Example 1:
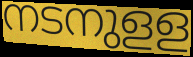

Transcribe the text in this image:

നടനുളള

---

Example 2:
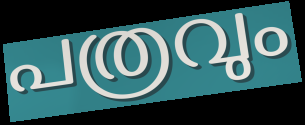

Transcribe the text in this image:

പത്രവും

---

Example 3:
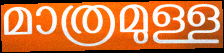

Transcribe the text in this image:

മാത്രമുള്ള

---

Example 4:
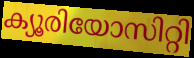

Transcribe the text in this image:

ക്യൂരിയോസിറ്റി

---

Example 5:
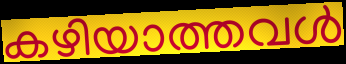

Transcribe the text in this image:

കഴിയാത്തവൾ